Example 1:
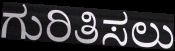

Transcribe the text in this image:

ಗುರಿತಿಸಲು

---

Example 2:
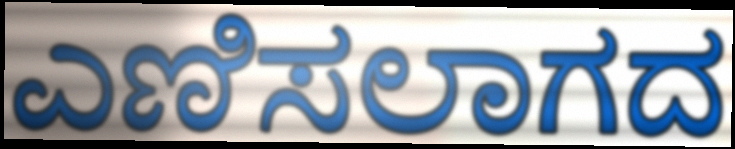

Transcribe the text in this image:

ಎಣಿಸಲಾಗದ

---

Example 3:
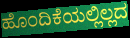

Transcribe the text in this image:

ಹೊಂದಿಕೆಯಲ್ಲಿಲ್ಲದ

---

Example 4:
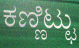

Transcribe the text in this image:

ಕಣ್ಣಿಟ್ಟು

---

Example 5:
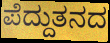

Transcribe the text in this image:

ಪೆದ್ದುತನದ